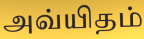
அவ்யிதம்